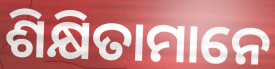
ଶିକ୍ଷିତାମାନେ